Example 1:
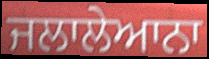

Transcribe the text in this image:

ਜਲਾਲੇਆਨਾ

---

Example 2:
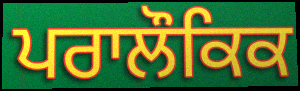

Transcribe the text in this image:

ਪਰਾਲੌਕਿਕ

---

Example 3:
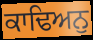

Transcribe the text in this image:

ਕਾਢਿਅਨੁ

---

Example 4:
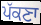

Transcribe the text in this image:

ਪੱਕਣਾ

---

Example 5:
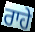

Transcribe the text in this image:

ਰਾਹੇ